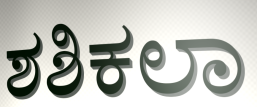
ಶಶಿಕಲಾ